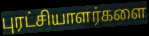
புரட்சியாளர்களை